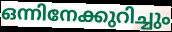
ഒന്നിനേക്കുറിച്ചും